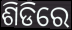
ଶିଡିରେ